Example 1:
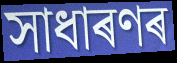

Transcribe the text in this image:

সাধাৰণৰ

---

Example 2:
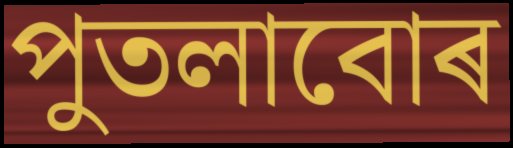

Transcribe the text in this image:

পুতলাবোৰ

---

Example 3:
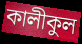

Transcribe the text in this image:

কালীকুল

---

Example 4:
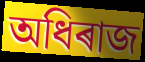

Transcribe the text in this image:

অধিৰাজ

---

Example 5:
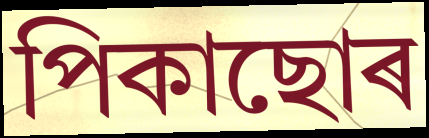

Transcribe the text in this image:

পিকাছোৰ